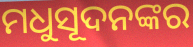
ମଧୁସୂଦନଙ୍କର